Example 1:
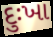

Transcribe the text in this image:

દુઃખા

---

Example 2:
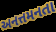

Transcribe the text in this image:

અનત્તમનતા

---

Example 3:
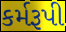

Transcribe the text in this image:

કર્મરૂપી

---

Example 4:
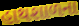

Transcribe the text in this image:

હાથશાળના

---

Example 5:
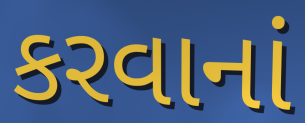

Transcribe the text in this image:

કરવાનાં